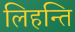
लिहन्ति